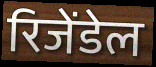
रिजेंडेल